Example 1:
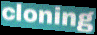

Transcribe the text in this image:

cloning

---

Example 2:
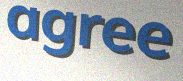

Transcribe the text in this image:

agree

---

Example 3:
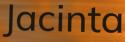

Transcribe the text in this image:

Jacinta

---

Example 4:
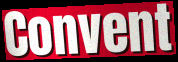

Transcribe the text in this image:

Convent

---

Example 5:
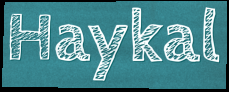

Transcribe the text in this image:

Haykal